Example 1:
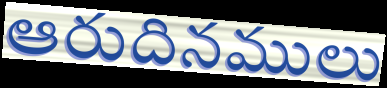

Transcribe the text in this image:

ఆరుదినములు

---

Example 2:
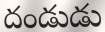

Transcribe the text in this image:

దండుడు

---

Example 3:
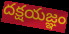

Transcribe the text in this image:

దక్షయజ్ఞం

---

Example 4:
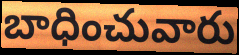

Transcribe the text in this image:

బాధించువారు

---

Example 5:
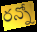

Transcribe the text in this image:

రన్నో